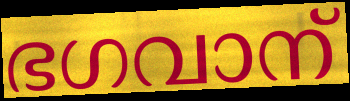
ഭഗവാന്